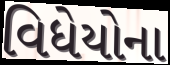
વિધેયોના